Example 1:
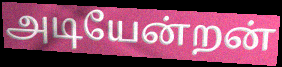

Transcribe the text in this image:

அடியேன்றன்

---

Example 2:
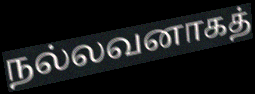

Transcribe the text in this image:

நல்லவனாகத்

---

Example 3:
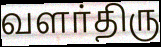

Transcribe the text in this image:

வளர்திரு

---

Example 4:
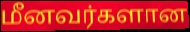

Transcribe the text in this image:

மீனவர்களான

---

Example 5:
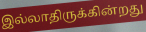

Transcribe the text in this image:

இல்லாதிருக்கின்றது